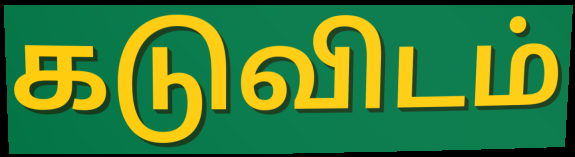
கடுவிடம்